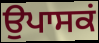
ਉਪਾਸਕਂ